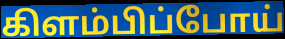
கிளம்பிப்போய்